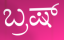
ಬ್ರಷ್